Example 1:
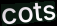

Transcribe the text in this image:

cots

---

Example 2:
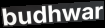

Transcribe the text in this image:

budhwar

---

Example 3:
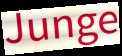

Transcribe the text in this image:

Junge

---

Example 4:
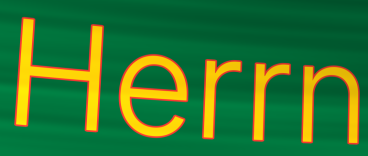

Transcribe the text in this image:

Herrn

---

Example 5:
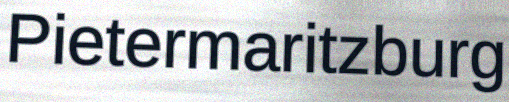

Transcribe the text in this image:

Pietermaritzburg